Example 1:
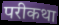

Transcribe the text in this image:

परीकथा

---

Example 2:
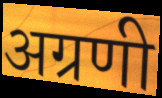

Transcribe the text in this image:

अग्रणी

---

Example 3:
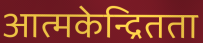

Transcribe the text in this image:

आत्मकेन्द्रितता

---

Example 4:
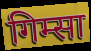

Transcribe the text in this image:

गिम्सा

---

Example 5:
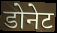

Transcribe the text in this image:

डोनेट